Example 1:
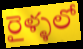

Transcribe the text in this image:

రైళ్ళలో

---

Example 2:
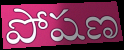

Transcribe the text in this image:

పోషణ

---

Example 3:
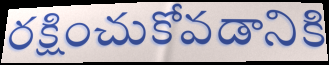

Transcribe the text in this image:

రక్షించుకోవడానికి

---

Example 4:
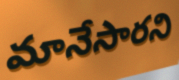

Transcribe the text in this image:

మానేసారని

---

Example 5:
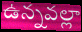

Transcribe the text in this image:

ఉన్నవల్లా